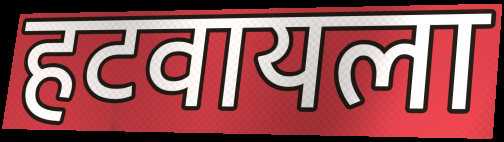
हटवायला